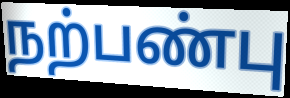
நற்பண்பு